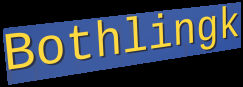
Bothlingk